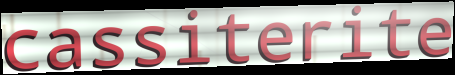
cassiterite